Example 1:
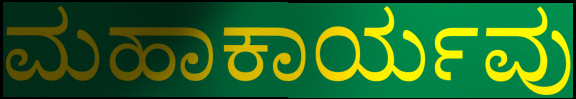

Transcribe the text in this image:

ಮಹಾಕಾರ್ಯವು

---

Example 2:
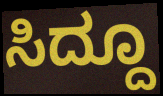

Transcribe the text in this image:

ಸಿದ್ದೂ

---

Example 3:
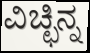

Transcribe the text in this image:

ವಿಚ್ಛಿನ್ನ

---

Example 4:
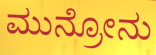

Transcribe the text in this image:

ಮುನ್ರೋನು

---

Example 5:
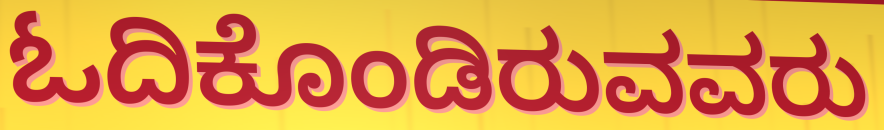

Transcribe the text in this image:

ಓದಿಕೊಂಡಿರುವವರು